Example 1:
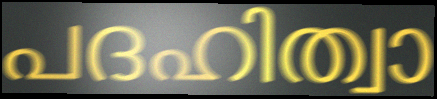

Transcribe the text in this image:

പദഹിത്വാ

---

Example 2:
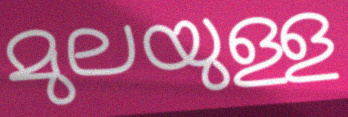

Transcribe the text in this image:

മുലയുള്ള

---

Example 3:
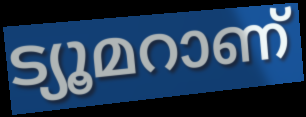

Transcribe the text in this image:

ട്യൂമറാണ്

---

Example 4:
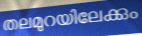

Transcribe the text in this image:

തലമുറയിലേക്കും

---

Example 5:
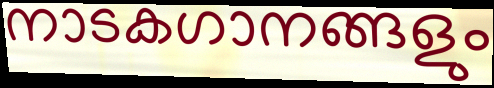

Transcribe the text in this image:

നാടകഗാനങ്ങളും